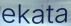
ekata